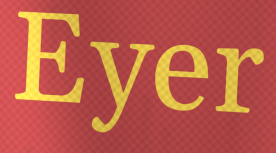
Eyer